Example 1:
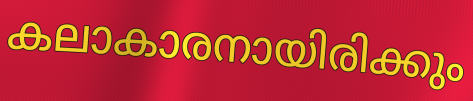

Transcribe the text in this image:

കലാകാരനായിരിക്കും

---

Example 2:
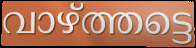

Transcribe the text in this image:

വാഴ്ത്തട്ടെ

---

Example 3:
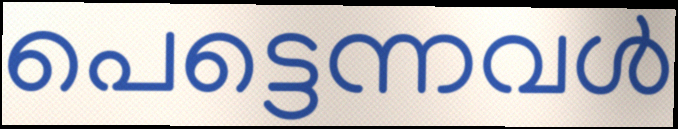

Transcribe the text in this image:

പെട്ടെന്നവൾ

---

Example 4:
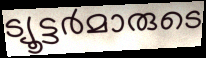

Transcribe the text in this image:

ട്യൂട്ടർമാരുടെ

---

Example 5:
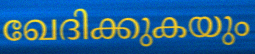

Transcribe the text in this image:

ഖേദിക്കുകയും